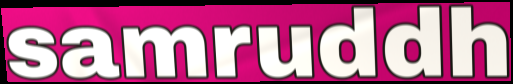
samruddh